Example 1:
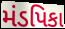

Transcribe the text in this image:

મંડપિકા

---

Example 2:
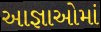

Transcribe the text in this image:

આજ્ઞાઓમાં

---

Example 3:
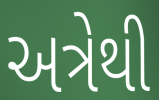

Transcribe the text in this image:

અત્રેથી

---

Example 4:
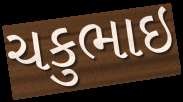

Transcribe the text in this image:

ચકુભાઇ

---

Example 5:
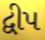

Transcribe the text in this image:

દ્વીપ